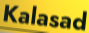
Kalasad